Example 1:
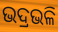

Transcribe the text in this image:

ଭଦ୍ରଭଳି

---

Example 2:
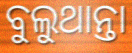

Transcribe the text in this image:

ବୁଲୁଥାନ୍ତା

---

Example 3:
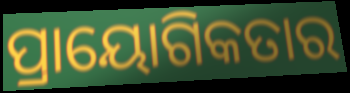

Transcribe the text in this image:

ପ୍ରାୟୋଗିକତାର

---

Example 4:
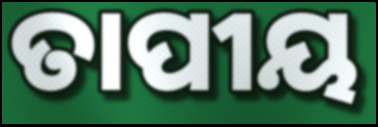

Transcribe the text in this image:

ତାପୀୟ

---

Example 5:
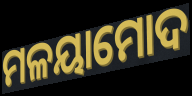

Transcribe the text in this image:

ମଳୟାମୋଦ